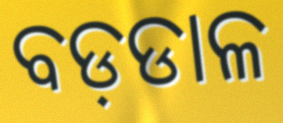
ବଡ଼ଡାଳ